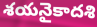
శయనైకాదశి